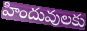
హిందువులకు